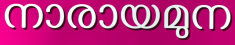
നാരായമുന